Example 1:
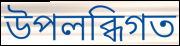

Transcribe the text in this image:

উপলব্ধিগত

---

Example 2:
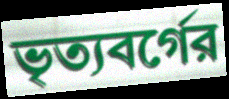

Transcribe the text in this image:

ভৃত্যবর্গের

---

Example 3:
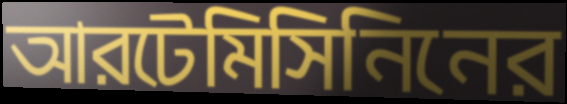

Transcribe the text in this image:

আরটেমিসিনিনের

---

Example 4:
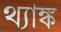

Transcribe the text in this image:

থ্যাঙ্ক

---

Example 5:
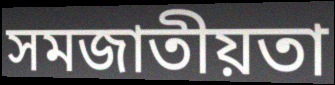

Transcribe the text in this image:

সমজাতীয়তা